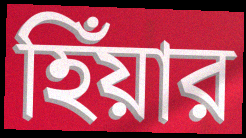
হিঁয়ার